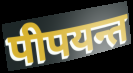
पीपयन्त